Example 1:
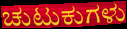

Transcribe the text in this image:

ಚುಟುಕುಗಳು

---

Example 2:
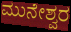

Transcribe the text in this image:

ಮುನೇಶ್ವರ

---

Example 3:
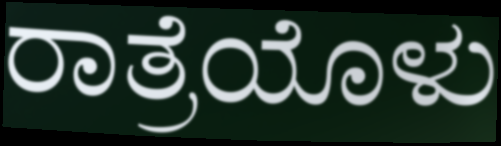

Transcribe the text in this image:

ರಾತ್ರೆಯೊಳು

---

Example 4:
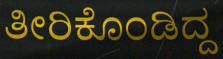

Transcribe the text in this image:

ತೀರಿಕೊಂಡಿದ್ದ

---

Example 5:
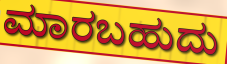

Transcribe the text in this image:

ಮಾರಬಹುದು